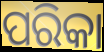
ପରିକା